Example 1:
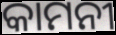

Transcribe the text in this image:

କାମନୀ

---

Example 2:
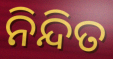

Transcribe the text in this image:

ନିନ୍ଦିତ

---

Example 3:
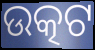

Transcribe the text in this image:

ଉତ୍କଟ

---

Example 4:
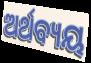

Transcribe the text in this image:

ଅର୍ଥବ୍ୟୟ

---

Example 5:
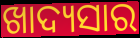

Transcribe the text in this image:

ଖାଦ୍ୟସାର